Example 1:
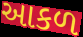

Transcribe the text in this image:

આકળ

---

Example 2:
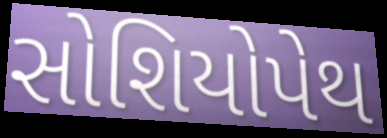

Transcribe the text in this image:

સોશિયોપેથ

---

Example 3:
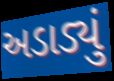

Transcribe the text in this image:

અડાડ્યું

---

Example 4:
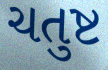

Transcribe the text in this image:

ચતુષ્ટ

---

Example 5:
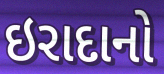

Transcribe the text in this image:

ઇરાદાનો